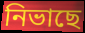
নিভাছে